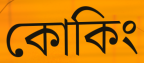
কোকিং